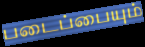
படைப்பையும்